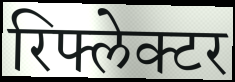
रिफ्लेक्टर